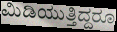
ಮಿಡಿಯುತ್ತಿದ್ದರೂ